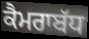
ਕੈਮਰਾਬੱਧ